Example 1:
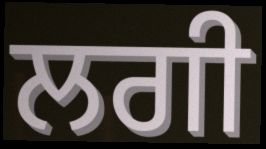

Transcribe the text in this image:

ਲਗੀ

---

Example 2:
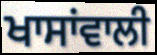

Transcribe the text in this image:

ਖਾਸਾਂਵਾਲੀ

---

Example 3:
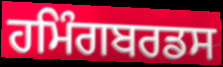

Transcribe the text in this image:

ਹਮਿੰਗਬਰਡਸ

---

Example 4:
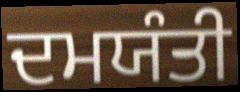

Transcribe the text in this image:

ਦਮਯੰਤੀ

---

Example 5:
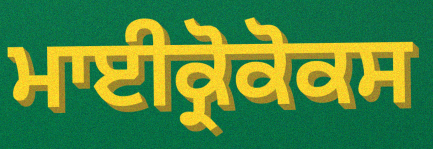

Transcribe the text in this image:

ਮਾਈਕ੍ਰੋਕੋਕਸ